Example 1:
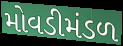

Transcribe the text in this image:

મોવડીમંડળ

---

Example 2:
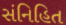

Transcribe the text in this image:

સંનિહિત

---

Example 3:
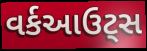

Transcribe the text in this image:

વર્કઆઉટ્સ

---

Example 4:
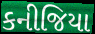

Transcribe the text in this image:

કનીજિયા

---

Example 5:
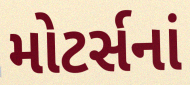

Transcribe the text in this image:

મોટર્સનાં